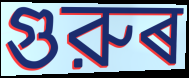
গুৰুৰ